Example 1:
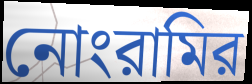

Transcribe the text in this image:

নোংরামির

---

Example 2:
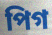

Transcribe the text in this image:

পিগ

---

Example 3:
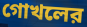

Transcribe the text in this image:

গোখলের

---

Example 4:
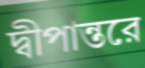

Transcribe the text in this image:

দ্বীপান্তরে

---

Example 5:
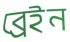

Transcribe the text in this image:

ব্রেইন